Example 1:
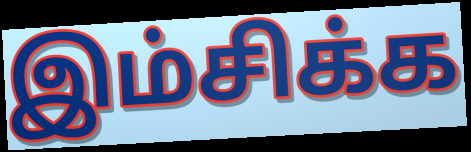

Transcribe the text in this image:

இம்சிக்க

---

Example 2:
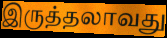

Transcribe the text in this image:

இருத்தலாவது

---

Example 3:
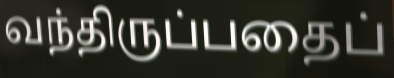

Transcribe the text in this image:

வந்திருப்பதைப்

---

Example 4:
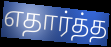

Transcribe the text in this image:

எதார்த்த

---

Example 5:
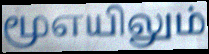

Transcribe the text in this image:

மூஎயிலும்